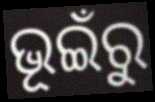
ଭୂଇଁରୁ